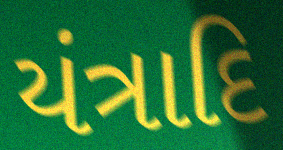
યંત્રાદિ